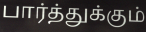
பார்த்துக்கும்